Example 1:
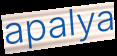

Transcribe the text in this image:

apalya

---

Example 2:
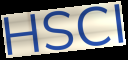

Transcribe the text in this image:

HSCI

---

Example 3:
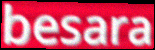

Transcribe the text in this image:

besara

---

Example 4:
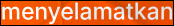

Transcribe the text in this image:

menyelamatkan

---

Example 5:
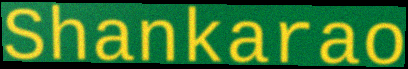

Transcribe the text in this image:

Shankarao